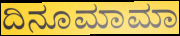
ದಿನೂಮಾಮಾ